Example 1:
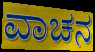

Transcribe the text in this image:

ವಾಚನ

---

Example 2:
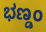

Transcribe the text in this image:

ಭಣ್ಡಂ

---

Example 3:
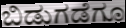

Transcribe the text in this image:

ಬಿಡುಗಡೆಗೂ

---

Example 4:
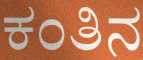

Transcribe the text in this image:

ಕಂತಿನ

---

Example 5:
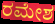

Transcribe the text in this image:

ರಮೇಶ